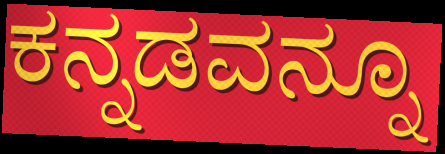
ಕನ್ನಡವನ್ನೂ